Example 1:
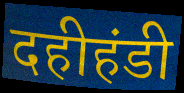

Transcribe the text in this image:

दहीहंडी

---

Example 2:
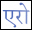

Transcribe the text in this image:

एरो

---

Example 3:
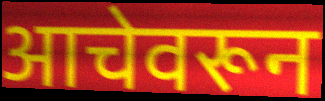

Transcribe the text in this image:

आचेवरून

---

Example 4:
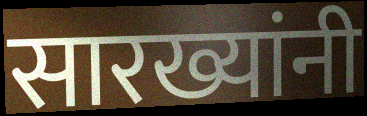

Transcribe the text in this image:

सारख्यांनी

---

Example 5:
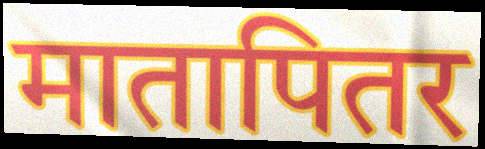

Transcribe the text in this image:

मातापितर